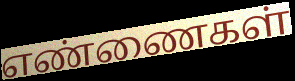
எண்ணைகள்